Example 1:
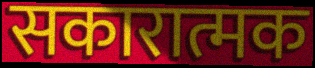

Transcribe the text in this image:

सकारात्मक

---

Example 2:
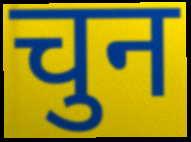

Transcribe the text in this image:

चुन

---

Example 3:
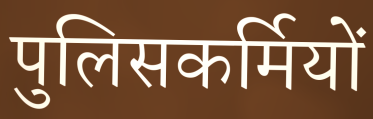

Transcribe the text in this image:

पुलिसकर्मियों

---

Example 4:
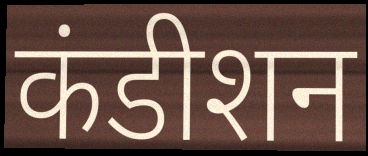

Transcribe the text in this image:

कंडीशन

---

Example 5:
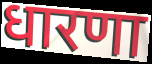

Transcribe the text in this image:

धारणा